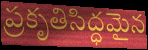
ప్రకృతిసిద్ధమైన